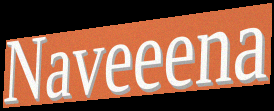
Naveeena